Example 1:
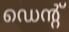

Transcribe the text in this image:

ഡെന്റ്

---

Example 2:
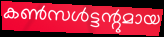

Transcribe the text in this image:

കൺസൾട്ടന്റുമായ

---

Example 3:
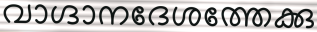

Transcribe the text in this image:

വാഗ്ദാനദേശത്തേക്കു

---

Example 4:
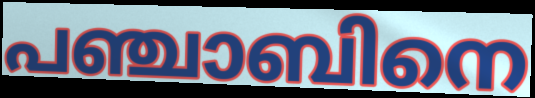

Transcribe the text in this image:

പഞ്ചാബിനെ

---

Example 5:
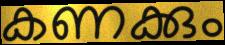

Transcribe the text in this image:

കണക്കും